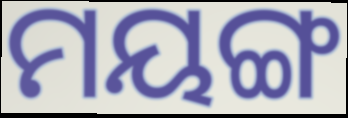
ମୟଙ୍ଗ